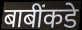
बाबींकडे